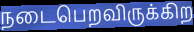
நடைபெறவிருக்கிற